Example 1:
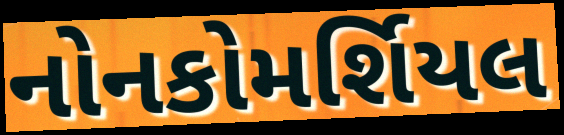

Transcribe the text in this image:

નોનકોમર્શિયલ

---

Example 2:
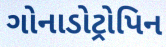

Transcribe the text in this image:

ગોનાડોટ્રોપિન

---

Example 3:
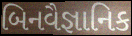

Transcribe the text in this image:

બિનવૈજ્ઞાનિક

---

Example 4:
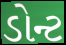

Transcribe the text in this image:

ડોન્ટ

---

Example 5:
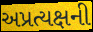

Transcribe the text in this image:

અપ્રત્યક્ષની